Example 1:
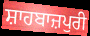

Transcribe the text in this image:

ਸ਼ਾਹਬਾਜ਼ਪੁਰੀ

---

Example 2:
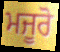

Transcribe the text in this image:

ਮਜੂਰੋ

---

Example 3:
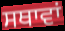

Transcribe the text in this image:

ਸਥਾਵਾਂ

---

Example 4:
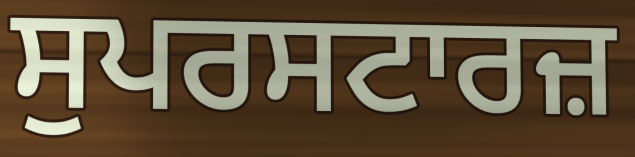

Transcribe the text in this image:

ਸੁਪਰਸਟਾਰਜ਼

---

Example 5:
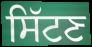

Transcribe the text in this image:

ਸਿੱਟਣ